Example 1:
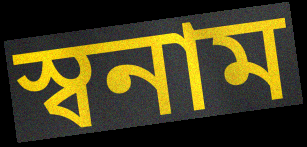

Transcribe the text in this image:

স্বনাম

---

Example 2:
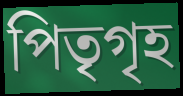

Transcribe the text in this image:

পিতৃগৃহ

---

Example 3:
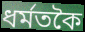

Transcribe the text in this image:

ধৰ্মতকৈ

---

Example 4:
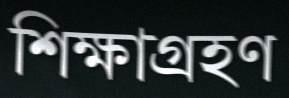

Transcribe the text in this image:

শিক্ষাগ্ৰহণ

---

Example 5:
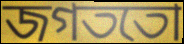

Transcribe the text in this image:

জগততো